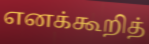
எனக்கூறித்